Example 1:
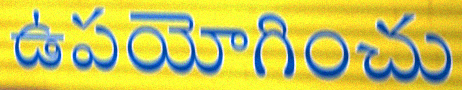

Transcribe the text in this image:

ఉపయోగించు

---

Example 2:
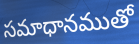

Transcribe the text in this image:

సమాధానముతో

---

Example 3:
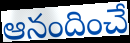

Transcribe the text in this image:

ఆనందించే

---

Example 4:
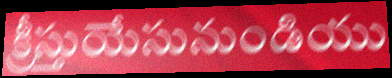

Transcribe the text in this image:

క్రీస్తుయేసునుండియు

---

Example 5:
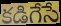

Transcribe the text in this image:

కడిగేసే